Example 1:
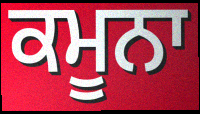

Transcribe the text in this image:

ਕਮੂਨਾ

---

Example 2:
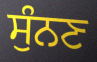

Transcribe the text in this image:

ਸੁੰਨਣ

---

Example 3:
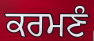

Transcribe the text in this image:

ਕਰਮਣੰ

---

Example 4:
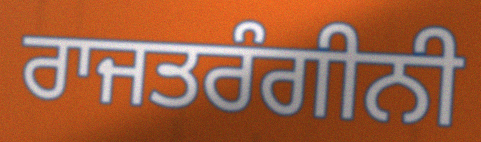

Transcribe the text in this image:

ਰਾਜਤਰੰਗੀਨੀ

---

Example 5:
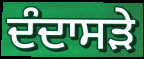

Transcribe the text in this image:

ਦੰਦਾਸੜੇ